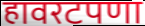
हावरटपणा